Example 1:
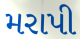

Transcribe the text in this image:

મરાપી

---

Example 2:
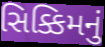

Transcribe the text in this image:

સિક્કિમનું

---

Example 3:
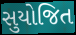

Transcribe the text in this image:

સુયોજિત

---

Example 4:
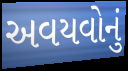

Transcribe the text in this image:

અવયવોનું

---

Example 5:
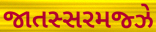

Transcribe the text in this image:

જાતસ્સરમજ્ઝે